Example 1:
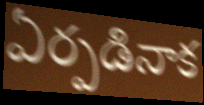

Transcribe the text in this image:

ఏర్పడినాక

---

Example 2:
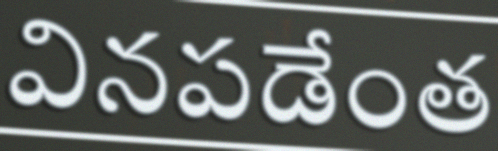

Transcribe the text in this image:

వినపడేంత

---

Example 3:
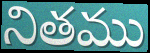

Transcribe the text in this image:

నితము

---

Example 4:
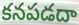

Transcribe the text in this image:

కనపడదా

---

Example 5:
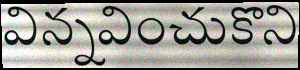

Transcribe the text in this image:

విన్నవించుకొని